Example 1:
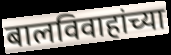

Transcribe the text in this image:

बालविवाहांच्या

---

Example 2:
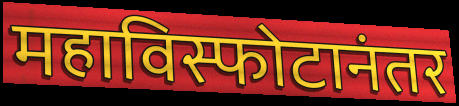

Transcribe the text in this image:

महाविस्फोटानंतर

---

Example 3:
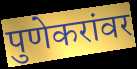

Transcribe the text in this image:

पुणेकरांवर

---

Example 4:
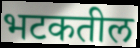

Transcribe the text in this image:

भटकतील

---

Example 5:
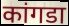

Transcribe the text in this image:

कांगडा